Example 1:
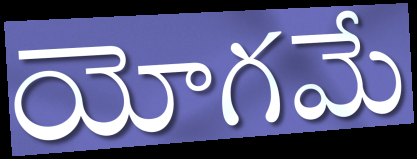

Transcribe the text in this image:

యోగమే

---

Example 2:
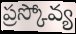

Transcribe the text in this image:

ప్రస్కోవ్య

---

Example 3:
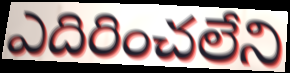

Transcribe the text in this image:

ఎదిరించలేని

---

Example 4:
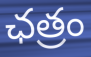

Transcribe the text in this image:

ఛత్రం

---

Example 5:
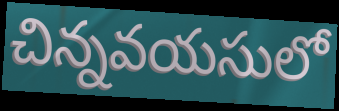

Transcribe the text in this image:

చిన్నవయసులో